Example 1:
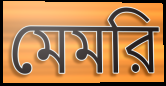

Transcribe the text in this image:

মেমরি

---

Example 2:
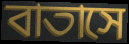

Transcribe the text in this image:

বাতাসে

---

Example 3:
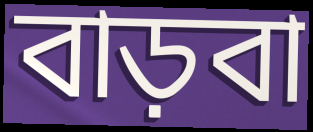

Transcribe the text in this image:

বাড়বা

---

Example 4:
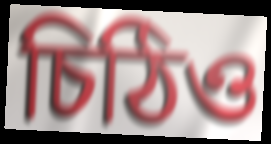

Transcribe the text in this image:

চিঠিও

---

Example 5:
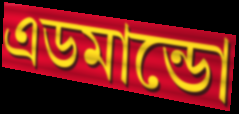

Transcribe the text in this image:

এডমান্ডো